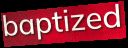
baptized